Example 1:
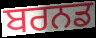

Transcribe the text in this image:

ਬਰਨਡ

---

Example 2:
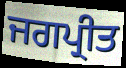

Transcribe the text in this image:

ਜਗਪ੍ਰੀਤ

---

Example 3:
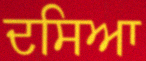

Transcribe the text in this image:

ਦਸਿਆ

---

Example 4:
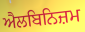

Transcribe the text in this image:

ਐਲਬਿਨਿਜ਼ਮ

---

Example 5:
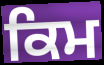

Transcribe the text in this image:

ਕਿਮ